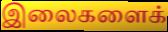
இலைகளைக்